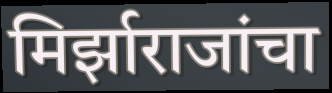
मिर्झाराजांचा